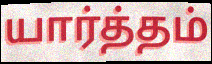
யார்த்தம்